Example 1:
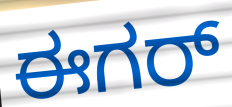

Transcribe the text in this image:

ಈಗರ್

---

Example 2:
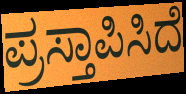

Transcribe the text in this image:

ಪ್ರಸ್ತಾಪಿಸಿದೆ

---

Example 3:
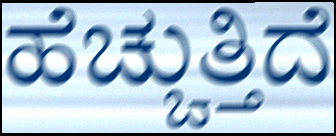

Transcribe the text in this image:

ಹೆಚ್ಚುತ್ತಿದೆ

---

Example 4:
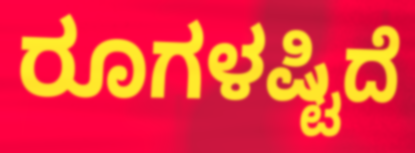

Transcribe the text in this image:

ರೂಗಳಷ್ಟಿದೆ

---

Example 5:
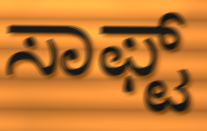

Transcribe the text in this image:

ಸಾಫ್ಟ್